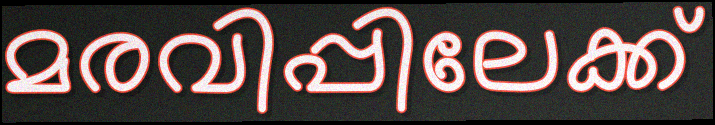
മരവിപ്പിലേക്ക്